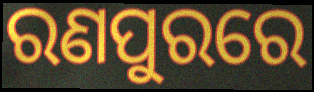
ରଣପୁରରେ